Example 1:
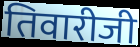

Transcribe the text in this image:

तिवारीजी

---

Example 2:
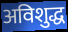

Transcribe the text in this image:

अविशुद्ध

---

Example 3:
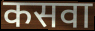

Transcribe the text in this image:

कसवा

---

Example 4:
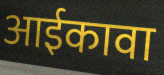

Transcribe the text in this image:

आईकावा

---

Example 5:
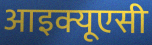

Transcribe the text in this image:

आइक्यूएसी